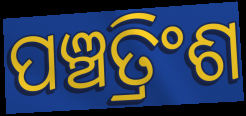
ପଞ୍ଚତ୍ରିଂଶ